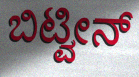
ಬಿಟ್ವೀನ್